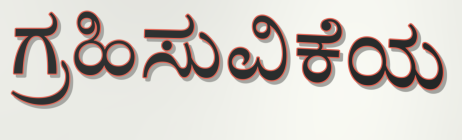
ಗ್ರಹಿಸುವಿಕೆಯ